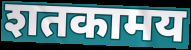
शतकामय